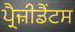
ਪ੍ਰੈਜ਼ੀਡੈਂਟਸ